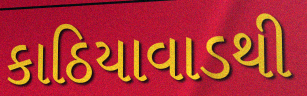
કાઠિયાવાડથી